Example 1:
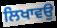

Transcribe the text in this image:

ਲਿਖਾਵਉ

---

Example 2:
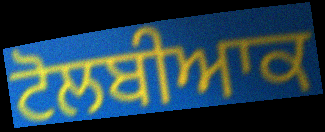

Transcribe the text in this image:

ਟੋਲਬੀਆਕ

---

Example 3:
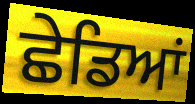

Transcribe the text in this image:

ਛੇਡਿਆਂ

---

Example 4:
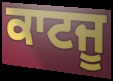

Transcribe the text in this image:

ਕਾਟਜੂ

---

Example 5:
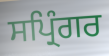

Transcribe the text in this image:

ਸਪ੍ਰਿੰਗਰ